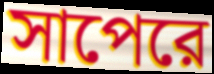
সাপেরে